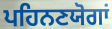
ਪਹਿਨਣਯੋਗਾਂ